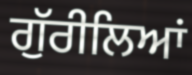
ਗੁੱਰੀਲਿਆਂ